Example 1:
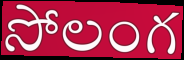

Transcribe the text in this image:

సోలంగ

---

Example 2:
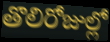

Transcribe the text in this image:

తొలిరోజుల్లో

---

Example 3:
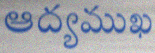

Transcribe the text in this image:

ఆద్యముఖ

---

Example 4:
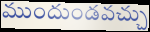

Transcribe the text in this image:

ముందుండవచ్చు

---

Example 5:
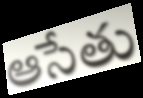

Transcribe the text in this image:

ఆసేతు